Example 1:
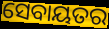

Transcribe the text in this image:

ସେବାୟତର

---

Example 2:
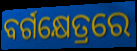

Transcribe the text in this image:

ବର୍ଗକ୍ଷେତ୍ରରେ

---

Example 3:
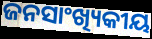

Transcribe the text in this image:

ଜନସାଂଖ୍ୟିକୀୟ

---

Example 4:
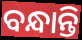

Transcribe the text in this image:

ବନ୍ଧାନ୍ତି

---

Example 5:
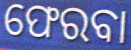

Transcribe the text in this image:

ଫେରବା